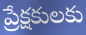
ప్రేక్షకులకు